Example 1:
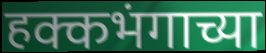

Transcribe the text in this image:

हक्कभंगाच्या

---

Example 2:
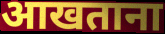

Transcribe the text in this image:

आखताना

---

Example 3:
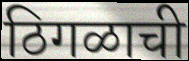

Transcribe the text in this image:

ठिगळाची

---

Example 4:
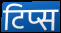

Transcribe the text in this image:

टिप्स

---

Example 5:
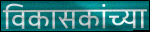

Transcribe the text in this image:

विकासकांच्या